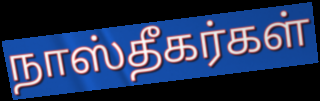
நாஸ்தீகர்கள்